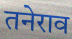
तनेराव